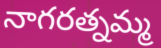
నాగరత్నమ్మ